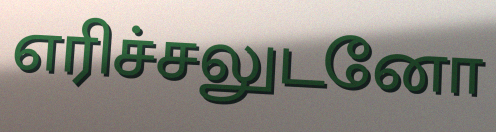
எரிச்சலுடனோ